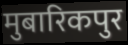
मुबारिकपुर